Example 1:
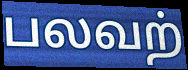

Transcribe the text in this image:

பலவற்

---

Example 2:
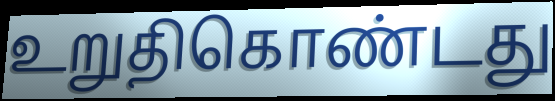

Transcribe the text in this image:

உறுதிகொண்டது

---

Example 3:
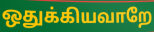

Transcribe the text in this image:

ஒதுக்கியவாறே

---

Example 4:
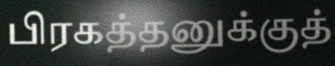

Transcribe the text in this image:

பிரகத்தனுக்குத்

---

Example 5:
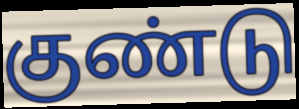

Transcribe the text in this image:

குண்டு